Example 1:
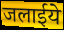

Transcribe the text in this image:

जलाईये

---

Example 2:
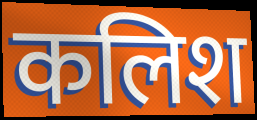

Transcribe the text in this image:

कलिश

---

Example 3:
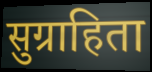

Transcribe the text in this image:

सुग्राहिता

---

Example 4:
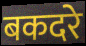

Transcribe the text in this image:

बकदरे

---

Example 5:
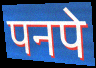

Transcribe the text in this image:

पनपे